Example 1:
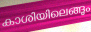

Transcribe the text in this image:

കാശിയിലെങ്ങും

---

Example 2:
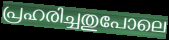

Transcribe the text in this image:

പ്രഹരിച്ചതുപോലെ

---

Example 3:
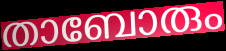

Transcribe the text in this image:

താബോരും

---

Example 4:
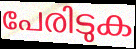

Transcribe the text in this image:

പേരിടുക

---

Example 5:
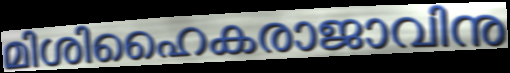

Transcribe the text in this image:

മിശിഹൈകരാജാവിനു